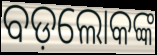
ବଡ଼ଲୋକଙ୍କ